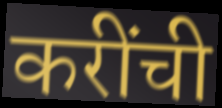
करींची